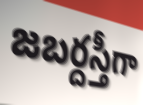
జబర్దస్తీగా